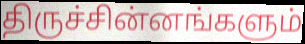
திருச்சின்னங்களும்